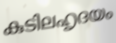
കുടിലഹൃദയം